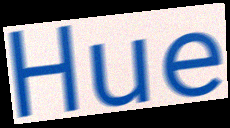
Hue